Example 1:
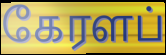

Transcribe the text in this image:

கேரளப்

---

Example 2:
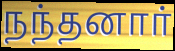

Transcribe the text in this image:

நந்தனார்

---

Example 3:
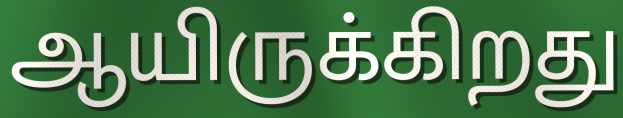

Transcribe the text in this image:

ஆயிருக்கிறது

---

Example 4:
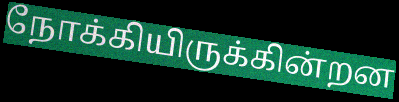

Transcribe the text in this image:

நோக்கியிருக்கின்றன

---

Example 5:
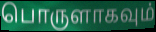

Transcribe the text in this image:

பொருளாகவும்